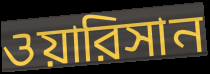
ওয়ারিসান